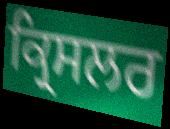
ਕ੍ਰਿਸਲਰ